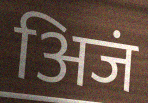
अिजं